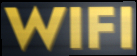
WIFI